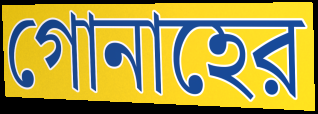
গোনাহের